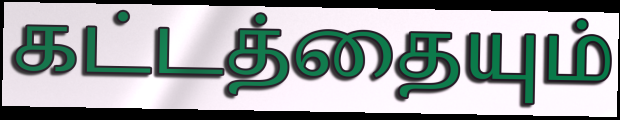
கட்டத்தையும்